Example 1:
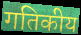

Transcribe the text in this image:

गतिकीय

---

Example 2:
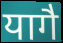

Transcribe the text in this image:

यागै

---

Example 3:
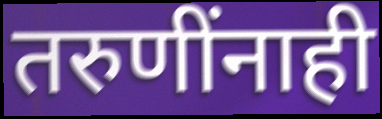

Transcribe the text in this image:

तरुणींनाही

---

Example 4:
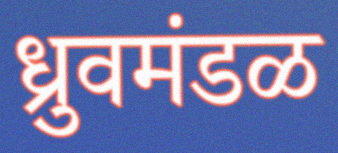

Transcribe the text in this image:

ध्रुवमंडळ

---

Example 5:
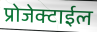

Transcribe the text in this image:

प्रोजेक्टाईल